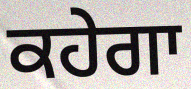
ਕਹੇਗਾ